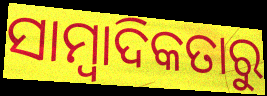
ସାମ୍ବାଦିକତାରୁ